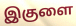
இகுளை